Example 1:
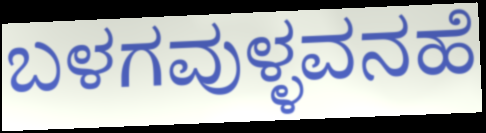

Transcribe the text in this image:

ಬಳಗವುಳ್ಳವನಹೆ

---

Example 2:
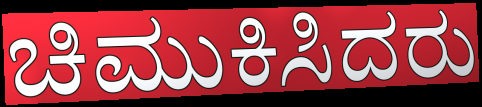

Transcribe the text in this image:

ಚಿಮುಕಿಸಿದರು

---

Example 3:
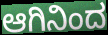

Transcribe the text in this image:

ಆಗಿನಿಂದ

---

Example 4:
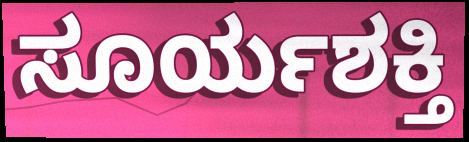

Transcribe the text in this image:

ಸೂರ್ಯಶಕ್ತಿ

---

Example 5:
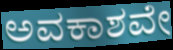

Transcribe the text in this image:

ಅವಕಾಶವೇ